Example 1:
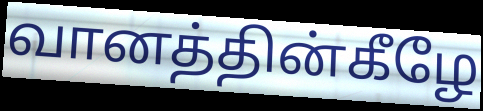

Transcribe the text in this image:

வானத்தின்கீழே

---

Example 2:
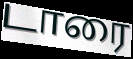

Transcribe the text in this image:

டாரை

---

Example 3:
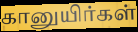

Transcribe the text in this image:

கானுயிர்கள்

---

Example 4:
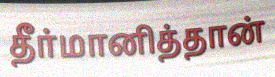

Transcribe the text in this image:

தீர்மானித்தான்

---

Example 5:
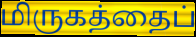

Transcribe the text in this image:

மிருகத்தைப்